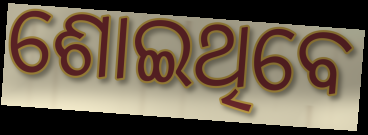
ଶୋଇଥିବେ